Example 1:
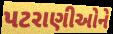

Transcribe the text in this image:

પટરાણીઓને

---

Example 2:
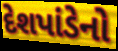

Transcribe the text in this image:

દેશપાંડેનો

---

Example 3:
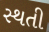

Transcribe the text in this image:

સ્થતી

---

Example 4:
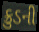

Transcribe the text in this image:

ક્રુડની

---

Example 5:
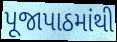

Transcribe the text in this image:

પૂજાપાઠમાંથી